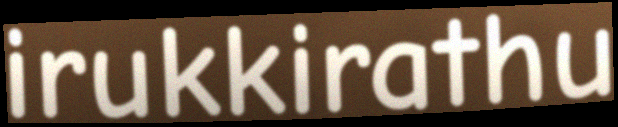
irukkirathu